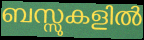
ബസ്സുകളിൽ